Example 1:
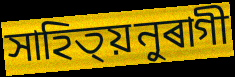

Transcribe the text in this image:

সাহিত্য়নুৰাগী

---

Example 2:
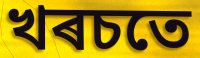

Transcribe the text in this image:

খৰচতে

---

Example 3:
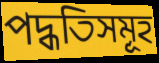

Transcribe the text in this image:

পদ্ধতিসমূহ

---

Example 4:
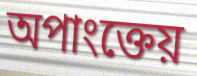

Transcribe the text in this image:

অপাংক্তেয়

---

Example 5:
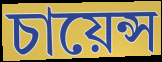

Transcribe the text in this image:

চায়েন্স